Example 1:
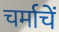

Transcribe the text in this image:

चर्माचें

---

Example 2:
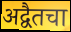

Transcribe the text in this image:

अद्वैतचा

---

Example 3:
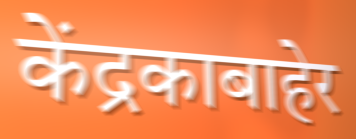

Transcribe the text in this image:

केंद्रकाबाहेर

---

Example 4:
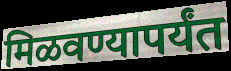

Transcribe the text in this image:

मिळवण्यापर्यंत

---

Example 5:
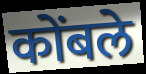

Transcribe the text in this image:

कोंबले